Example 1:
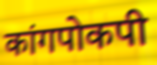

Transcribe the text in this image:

कांगपोकपी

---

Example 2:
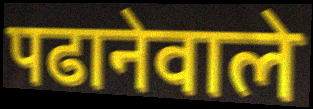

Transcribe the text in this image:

पढानेवाले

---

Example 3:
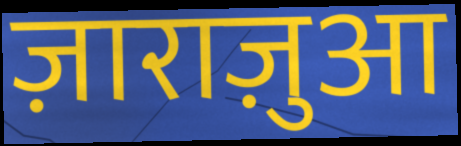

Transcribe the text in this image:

ज़ाराज़ुआ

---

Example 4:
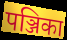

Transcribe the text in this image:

पञ्जिका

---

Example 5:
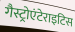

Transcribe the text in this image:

गैस्ट्रोएंटेराइटिस